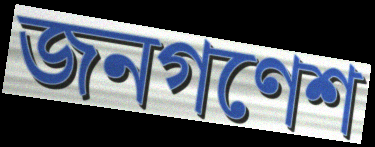
জনগণেশ